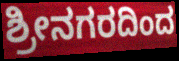
ಶ್ರೀನಗರದಿಂದ